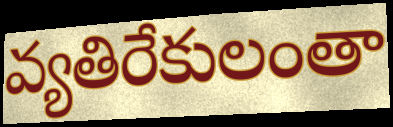
వ్యతిరేకులంతా